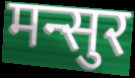
मन्सुर